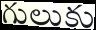
గులుకు